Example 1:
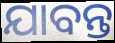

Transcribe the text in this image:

ଯାବନ୍ତ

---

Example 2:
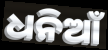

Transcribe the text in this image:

ଧନିଆଁ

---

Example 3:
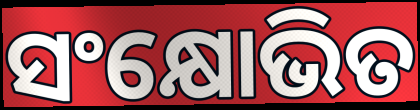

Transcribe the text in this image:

ସଂକ୍ଷୋଭିତ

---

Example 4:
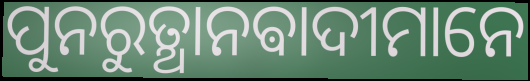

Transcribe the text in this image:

ପୁନରୁତ୍ଥାନଵାଦୀମାନେ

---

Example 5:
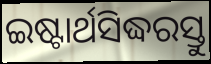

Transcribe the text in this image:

ଇଷ୍ଟାର୍ଥସିଦ୍ଧରସ୍ତୁ